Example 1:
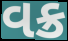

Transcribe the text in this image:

વક્ર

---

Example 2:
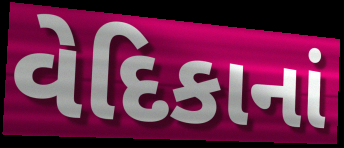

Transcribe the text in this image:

વેદિકાનાં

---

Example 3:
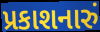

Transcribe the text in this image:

પ્રકાશનારું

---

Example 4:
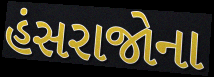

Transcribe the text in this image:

હંસરાજોના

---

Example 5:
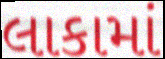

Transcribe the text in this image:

લાકામાં